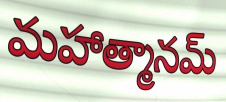
మహాత్మానమ్